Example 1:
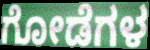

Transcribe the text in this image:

ಗೋಡೆಗಳ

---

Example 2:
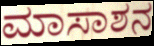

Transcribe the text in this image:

ಮಾಸಾಶನ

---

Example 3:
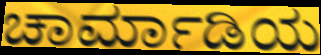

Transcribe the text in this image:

ಚಾರ್ಮಾಡಿಯ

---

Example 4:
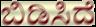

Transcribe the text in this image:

ಬಿಡಿಸಿದೆ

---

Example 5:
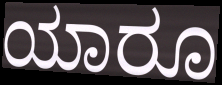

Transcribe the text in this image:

ಯಾರೂ